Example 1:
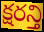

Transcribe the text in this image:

క్షరన్తి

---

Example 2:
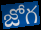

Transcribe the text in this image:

జోగ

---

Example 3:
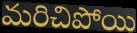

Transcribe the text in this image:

మరిచిపోయి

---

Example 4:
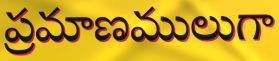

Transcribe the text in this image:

ప్రమాణములుగా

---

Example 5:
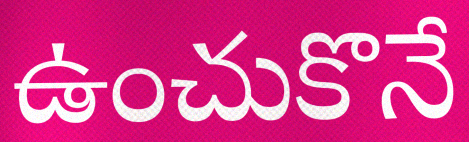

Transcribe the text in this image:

ఉంచుకొనే